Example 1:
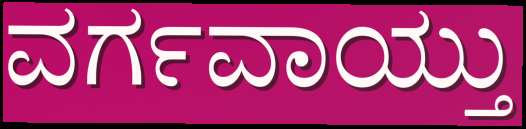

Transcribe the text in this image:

ವರ್ಗವಾಯ್ತು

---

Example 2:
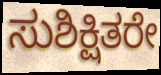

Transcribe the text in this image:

ಸುಶಿಕ್ಷಿತರೇ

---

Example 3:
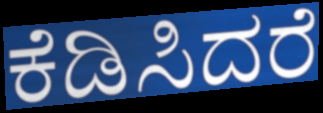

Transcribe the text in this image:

ಕೆಡಿಸಿದರೆ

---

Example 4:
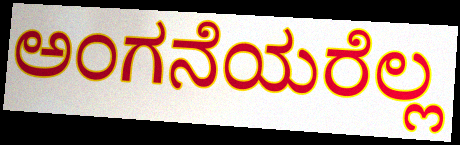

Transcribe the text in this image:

ಅಂಗನೆಯರೆಲ್ಲ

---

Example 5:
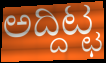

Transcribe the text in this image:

ಅದ್ದಿಟ್ಟ